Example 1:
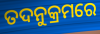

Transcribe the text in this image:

ତଦନୁକ୍ରମରେ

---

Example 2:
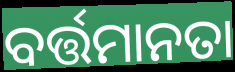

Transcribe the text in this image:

ବର୍ତ୍ତମାନତା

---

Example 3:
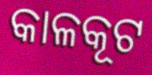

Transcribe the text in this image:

କାଳକୂଟ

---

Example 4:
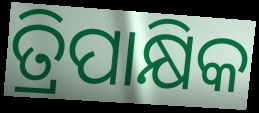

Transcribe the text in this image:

ତ୍ରିପାକ୍ଷିକ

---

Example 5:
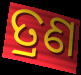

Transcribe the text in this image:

ତ୍ରଣ